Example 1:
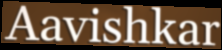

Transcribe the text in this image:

Aavishkar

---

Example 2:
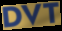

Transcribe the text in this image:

DVT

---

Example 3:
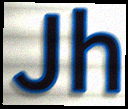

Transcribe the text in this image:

Jh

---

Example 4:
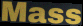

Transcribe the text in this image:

Mass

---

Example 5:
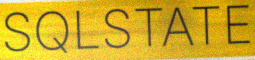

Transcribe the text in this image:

SQLSTATE